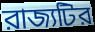
রাজ্যটির